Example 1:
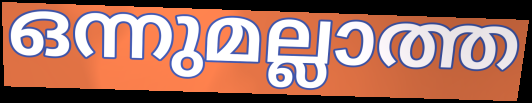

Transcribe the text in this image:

ഒന്നുമല്ലാത്ത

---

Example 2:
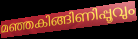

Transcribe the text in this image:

മഞ്ഞകിങ്ങിണിപ്പൂവും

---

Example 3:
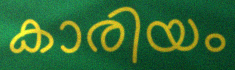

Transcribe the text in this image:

കാരിയം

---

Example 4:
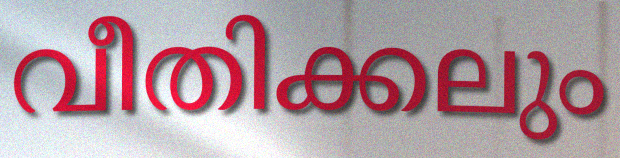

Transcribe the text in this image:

വീതിക്കലും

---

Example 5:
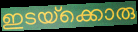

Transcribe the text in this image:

ഇടയ്‌ക്കൊരു